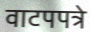
वाटपपत्रे